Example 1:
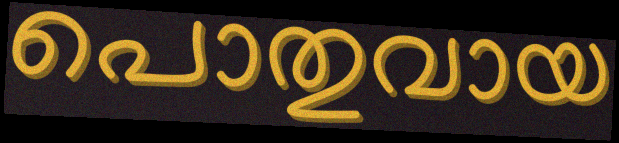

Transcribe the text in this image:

പൊതുവായ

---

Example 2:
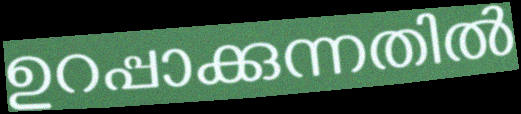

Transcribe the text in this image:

ഉറപ്പാക്കുന്നതിൽ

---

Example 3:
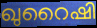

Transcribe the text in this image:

ഖുറൈഷി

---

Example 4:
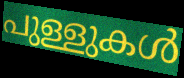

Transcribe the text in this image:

പുള്ളുകൾ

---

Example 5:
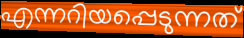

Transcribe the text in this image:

എന്നറിയപ്പെടുന്നത്